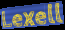
Lexell